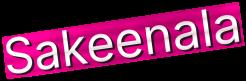
Sakeenala